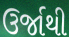
ઉર્જાથી